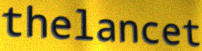
thelancet